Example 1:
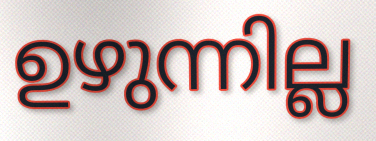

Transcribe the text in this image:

ഉഴുന്നില്ല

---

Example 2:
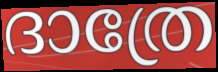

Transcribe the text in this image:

ദാത്രേ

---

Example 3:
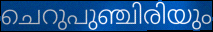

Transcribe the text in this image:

ചെറുപുഞ്ചിരിയും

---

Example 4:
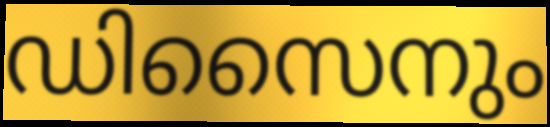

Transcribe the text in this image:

ഡിസൈനും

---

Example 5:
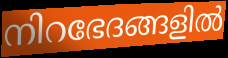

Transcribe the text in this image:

നിറഭേദങ്ങളിൽ